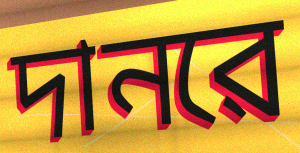
দানৱে